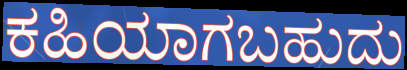
ಕಹಿಯಾಗಬಹುದು